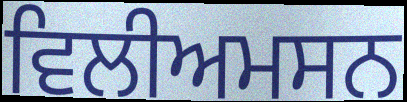
ਵਿਲੀਅਮਸਨ